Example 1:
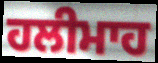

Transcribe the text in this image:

ਹਲੀਮਾਹ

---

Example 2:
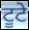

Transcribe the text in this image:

ਟੂਟੇ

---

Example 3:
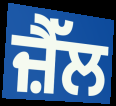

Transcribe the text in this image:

ਜ਼ੈੱਲ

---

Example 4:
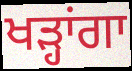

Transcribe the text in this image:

ਖੜ੍ਹਾਂਗਾ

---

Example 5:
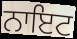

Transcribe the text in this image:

ਨਾਇਟ